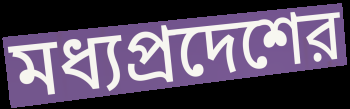
মধ্যপ্রদেশের